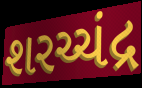
શરચ્ચંદ્ર